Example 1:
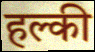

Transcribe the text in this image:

हल्‍की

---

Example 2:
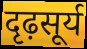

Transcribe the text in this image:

दृढ़सूर्य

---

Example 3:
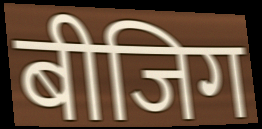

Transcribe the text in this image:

बीजिग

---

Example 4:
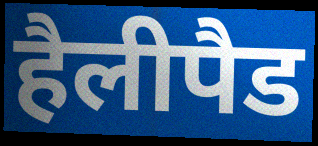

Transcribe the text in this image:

हैलीपैड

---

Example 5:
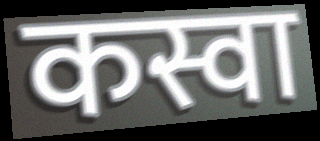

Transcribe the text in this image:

कस्वा